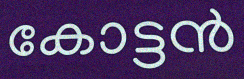
കോട്ടൻ